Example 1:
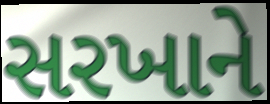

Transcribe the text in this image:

સરખાને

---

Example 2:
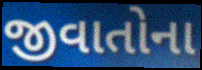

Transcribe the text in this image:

જીવાતોના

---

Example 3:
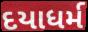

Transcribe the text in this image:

દયાધર્મ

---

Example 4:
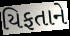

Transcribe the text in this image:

યિફતાને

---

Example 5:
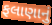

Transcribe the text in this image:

ફલાણાનું